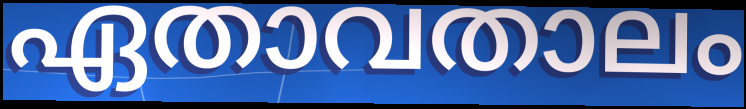
ഏതാവതാലം